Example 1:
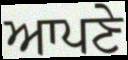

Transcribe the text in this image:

ਆਪਣੇ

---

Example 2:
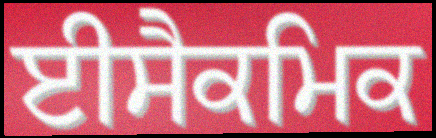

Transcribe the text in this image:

ਈਸੈਕਮਿਕ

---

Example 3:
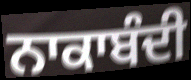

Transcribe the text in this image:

ਨਾਕਾਬੰਦੀ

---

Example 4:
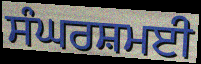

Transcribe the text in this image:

ਸੰਘਰਸ਼ਮਈ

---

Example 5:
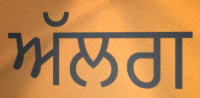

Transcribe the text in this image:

ਅੱਲਗ